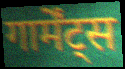
गार्मेंट्स